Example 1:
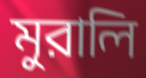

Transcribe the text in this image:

মুরালি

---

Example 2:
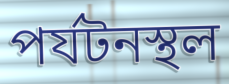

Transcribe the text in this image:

পর্যটনস্থল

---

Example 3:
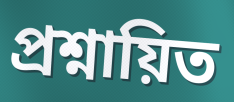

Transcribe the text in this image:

প্রশ্নায়িত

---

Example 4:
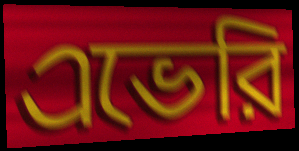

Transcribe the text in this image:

এভেরি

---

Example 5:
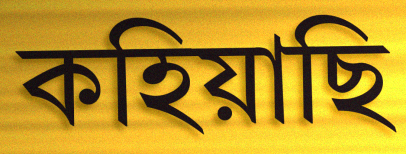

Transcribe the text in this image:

কহিয়াছি